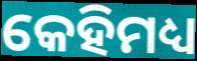
କେହିମଧ୍ୟ